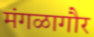
मंगळागौर